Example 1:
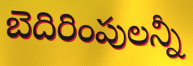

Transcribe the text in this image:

బెదిరింపులన్నీ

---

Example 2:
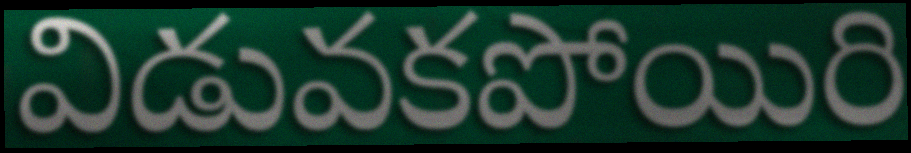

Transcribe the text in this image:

విడువకపోయిరి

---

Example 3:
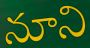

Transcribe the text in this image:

నూని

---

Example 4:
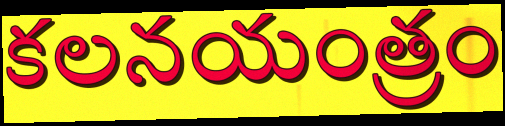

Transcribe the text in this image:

కలనయంత్రం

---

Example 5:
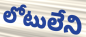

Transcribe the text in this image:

లోటులేని